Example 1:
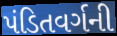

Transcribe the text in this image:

પંડિતવર્ગની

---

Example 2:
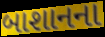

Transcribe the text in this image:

બાશાનના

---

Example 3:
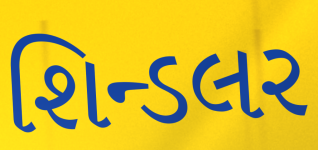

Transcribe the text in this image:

શિન્ડલર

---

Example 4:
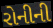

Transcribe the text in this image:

રોનીની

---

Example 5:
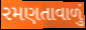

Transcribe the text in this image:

રમણતાવાળું